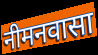
नीमनवासा